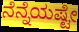
ನೆನ್ನೆಯಷ್ಟೇ